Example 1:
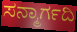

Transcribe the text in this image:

ಸನ್ಮಾರ್ಗದಿ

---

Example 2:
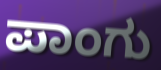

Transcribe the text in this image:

ಪಾಂಗು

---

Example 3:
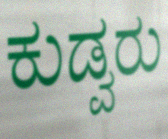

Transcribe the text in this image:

ಕುಡ್ವರು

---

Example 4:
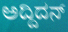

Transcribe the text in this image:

ಅದ್ದಿದನ್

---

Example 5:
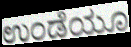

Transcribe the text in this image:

ಉಂಡೆಯೂ